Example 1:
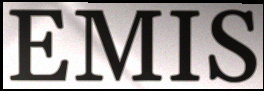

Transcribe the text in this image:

EMIS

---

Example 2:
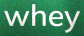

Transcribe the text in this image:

whey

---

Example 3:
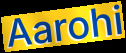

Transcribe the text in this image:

Aarohi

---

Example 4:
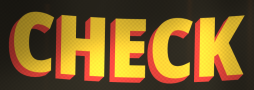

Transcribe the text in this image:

CHECK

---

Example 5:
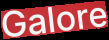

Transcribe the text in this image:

Galore